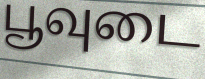
பூவுடை